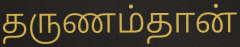
தருணம்தான்